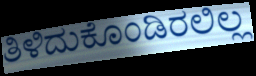
ತಿಳಿದುಕೊಂಡಿರಲಿಲ್ಲ